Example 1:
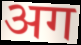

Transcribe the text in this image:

अग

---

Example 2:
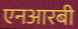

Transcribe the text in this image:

एनआरबी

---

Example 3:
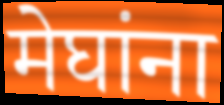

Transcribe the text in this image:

मेघांना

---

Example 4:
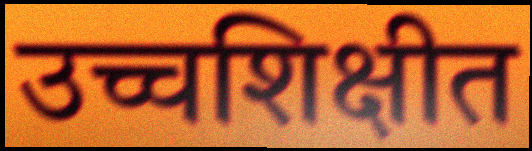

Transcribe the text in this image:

उच्चशिक्षीत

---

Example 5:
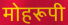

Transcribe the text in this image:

मोहरूपी